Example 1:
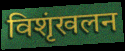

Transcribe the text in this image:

विशृंखलन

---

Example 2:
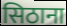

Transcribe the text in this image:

सिठाना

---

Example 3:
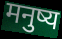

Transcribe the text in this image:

मनुष्‍य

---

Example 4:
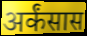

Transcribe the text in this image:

अर्कंसास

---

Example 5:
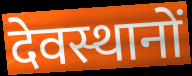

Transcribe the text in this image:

देवस्थानों